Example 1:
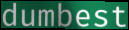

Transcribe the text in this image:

dumbest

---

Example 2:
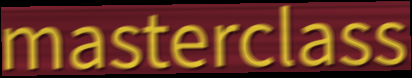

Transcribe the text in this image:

masterclass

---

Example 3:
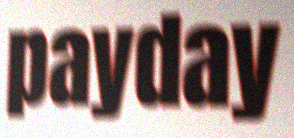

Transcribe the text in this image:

payday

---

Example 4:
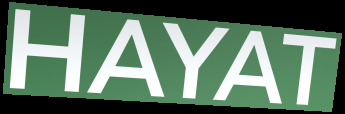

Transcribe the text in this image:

HAYAT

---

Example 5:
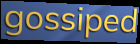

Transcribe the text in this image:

gossiped